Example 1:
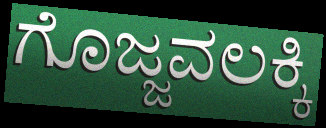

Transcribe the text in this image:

ಗೊಜ್ಜವಲಕ್ಕಿ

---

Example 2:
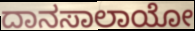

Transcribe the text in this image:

ದಾನಸಾಲಾಯೋ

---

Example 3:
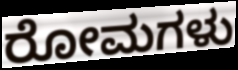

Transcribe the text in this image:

ರೋಮಗಳು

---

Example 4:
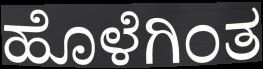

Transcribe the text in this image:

ಹೊಳೆಗಿಂತ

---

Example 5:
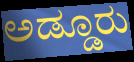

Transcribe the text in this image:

ಅಡ್ಡೂರು